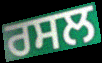
ਰਸਲ